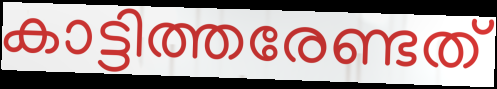
കാട്ടിത്തരേണ്ടത്